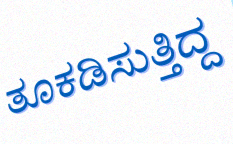
ತೂಕಡಿಸುತ್ತಿದ್ದ